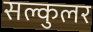
सल्कुलर